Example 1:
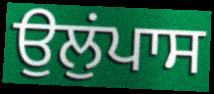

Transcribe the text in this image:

ਉਲੁਂਪਾਸ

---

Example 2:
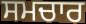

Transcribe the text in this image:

ਸਮਚਾਰ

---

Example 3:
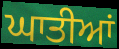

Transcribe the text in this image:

ਘਾਤੀਆਂ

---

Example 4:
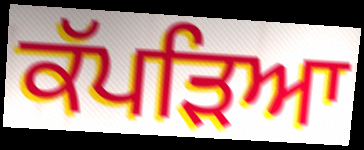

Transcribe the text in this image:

ਕੱਪੜਿਆ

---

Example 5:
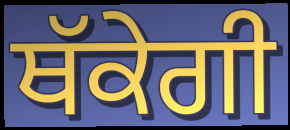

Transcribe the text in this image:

ਥੱਕੇਗੀ